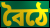
বৈঠে